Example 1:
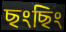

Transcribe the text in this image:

ছংছিং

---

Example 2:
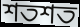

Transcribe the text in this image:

শতশত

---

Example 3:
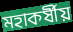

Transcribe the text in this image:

মহাকর্ষীয়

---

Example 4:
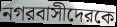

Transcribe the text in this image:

নগরবাসীদেরকে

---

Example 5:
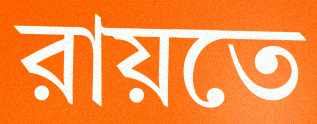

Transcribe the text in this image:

রায়তে